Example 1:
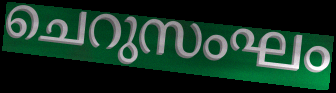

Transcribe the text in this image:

ചെറുസംഘം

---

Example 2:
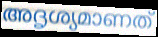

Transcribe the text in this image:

അദൃശ്യമാണത്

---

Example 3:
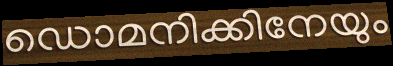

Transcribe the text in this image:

ഡൊമനിക്കിനേയും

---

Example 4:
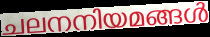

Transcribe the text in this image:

ചലനനിയമങ്ങൾ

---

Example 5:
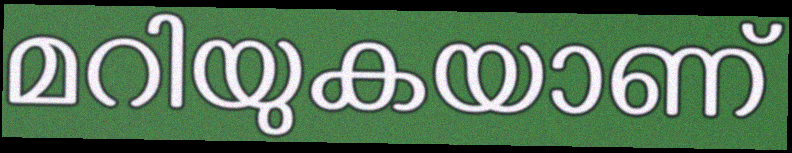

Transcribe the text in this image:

മറിയുകയാണ്